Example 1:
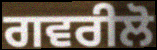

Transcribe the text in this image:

ਗਵਰੀਲੋ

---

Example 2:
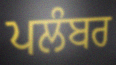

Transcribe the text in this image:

ਪਲੰਬਰ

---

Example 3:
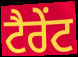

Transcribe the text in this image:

ਟੈਰੇਂਟ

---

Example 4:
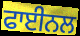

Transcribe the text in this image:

ਫਾਈਨਲ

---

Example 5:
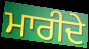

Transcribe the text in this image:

ਮਾਰੀਦੇ